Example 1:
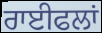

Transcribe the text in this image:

ਰਾਈਫਲਾਂ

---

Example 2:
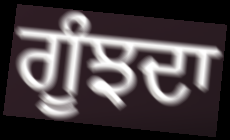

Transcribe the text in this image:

ਗੂੰਝਦਾ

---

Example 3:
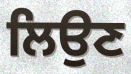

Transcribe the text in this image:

ਲਿਉਣ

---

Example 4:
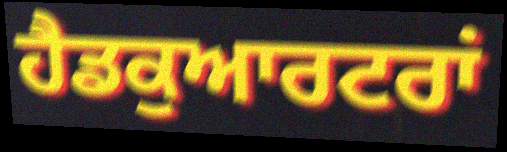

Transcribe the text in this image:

ਹੈਡਕੁਆਰਟਰਾਂ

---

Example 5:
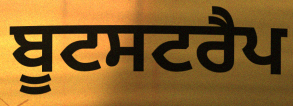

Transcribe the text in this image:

ਬੂਟਸਟਰੈਪ